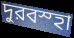
দুরবস্হা